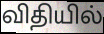
விதியில்